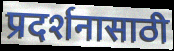
प्रदर्शनासाठी